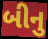
બીનુ